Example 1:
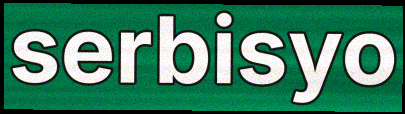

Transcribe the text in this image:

serbisyo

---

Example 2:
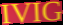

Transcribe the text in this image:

IVIG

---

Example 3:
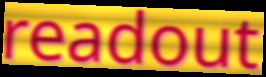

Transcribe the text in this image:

readout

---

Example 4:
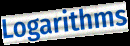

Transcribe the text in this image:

Logarithms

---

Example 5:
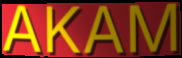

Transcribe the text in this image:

AKAM